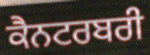
ਕੈਨਟਰਬਰੀ